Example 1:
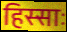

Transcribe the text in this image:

हिस्साः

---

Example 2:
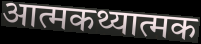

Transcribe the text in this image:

आत्मकथ्यात्मक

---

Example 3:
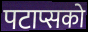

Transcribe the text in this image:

पटाप्सको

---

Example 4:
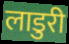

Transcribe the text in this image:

लाडुरी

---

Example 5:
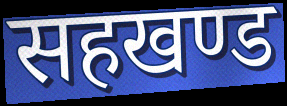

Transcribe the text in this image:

सहखण्ड